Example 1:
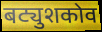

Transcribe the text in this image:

बट्युशकोव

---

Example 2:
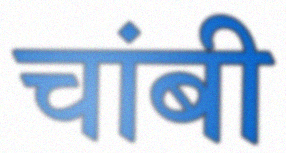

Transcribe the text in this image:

चांबी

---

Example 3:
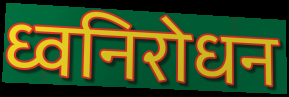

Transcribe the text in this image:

ध्वनिरोधन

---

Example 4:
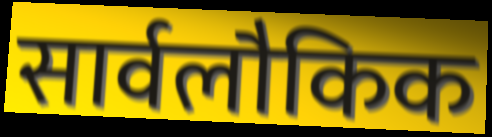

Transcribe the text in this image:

सार्वलौकिक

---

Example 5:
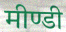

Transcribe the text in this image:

मीण्‍डी